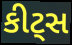
કીટ્સ